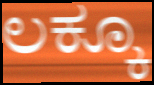
ಲಕ್ಕೂ